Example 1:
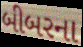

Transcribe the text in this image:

બીબરના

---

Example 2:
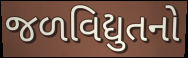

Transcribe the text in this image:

જળવિદ્યુતનો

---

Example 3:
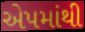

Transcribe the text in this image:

એપમાંથી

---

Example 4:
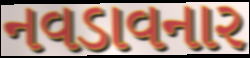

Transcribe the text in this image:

નવડાવનાર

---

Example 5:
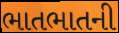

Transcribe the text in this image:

ભાતભાતની